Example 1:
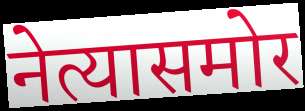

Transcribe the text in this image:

नेत्यासमोर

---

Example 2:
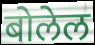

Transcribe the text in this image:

बोलेल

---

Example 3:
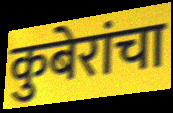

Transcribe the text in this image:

कुबेरांचा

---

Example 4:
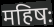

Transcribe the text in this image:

महिषः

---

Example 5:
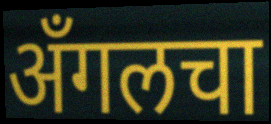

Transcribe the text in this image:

अँगलचा